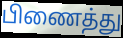
பிணைத்து